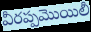
వీరప్పమొయిలీ